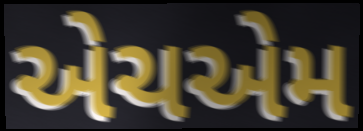
એચએમ